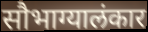
सौभाग्यालंकार